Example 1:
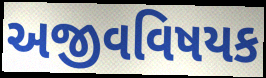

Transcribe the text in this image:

અજીવવિષયક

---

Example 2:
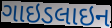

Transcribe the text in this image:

ગાઇડલાઇન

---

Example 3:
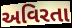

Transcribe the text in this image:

અવિરતા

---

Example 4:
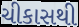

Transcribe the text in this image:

ચીકાસથી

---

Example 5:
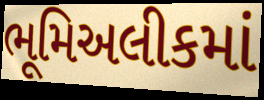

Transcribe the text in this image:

ભૂમિઅલીકમાં